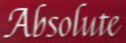
Absolute